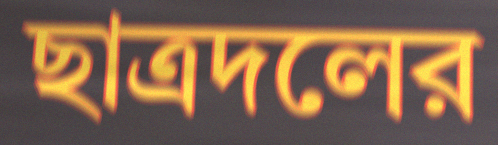
ছাত্রদলের